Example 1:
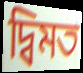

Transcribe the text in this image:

দ্বিমত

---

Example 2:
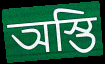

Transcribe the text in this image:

অস্তি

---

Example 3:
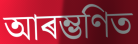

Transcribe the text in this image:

আৰম্ভণিত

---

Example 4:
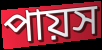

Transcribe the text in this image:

পায়স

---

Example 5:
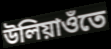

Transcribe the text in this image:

উলিয়াওঁতে